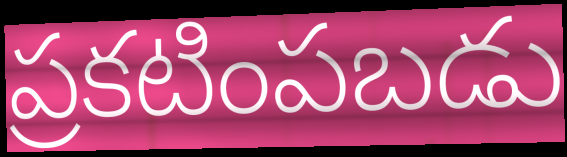
ప్రకటింపబడు